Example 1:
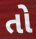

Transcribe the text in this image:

તો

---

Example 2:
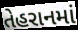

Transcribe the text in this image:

તેહરાનમાં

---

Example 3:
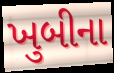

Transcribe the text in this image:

ખુબીના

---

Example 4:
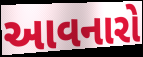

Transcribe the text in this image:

આવનારો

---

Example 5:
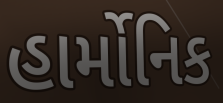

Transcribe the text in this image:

હાર્મોનિક